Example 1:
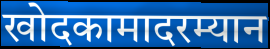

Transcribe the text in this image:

खोदकामादरम्यान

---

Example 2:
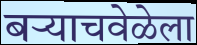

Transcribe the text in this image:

बर्‍याचवेळेला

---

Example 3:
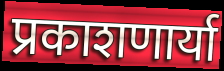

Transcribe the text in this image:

प्रकाशणार्या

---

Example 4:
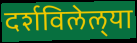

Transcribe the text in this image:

दर्शविलेल्या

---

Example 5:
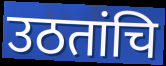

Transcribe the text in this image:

उठतांचि